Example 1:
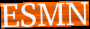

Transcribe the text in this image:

ESMN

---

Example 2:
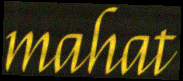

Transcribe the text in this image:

mahat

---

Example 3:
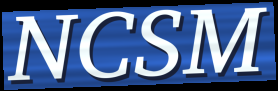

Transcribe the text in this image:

NCSM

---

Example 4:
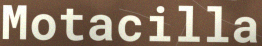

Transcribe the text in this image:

Motacilla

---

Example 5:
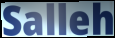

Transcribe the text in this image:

Salleh